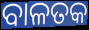
ବାଳତକ